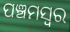
ପଞ୍ଚମସ୍ଵର